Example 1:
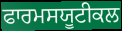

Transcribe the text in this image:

ਫਾਰਮਸਯੂਟੀਕਲ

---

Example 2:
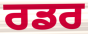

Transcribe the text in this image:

ਰਡਰ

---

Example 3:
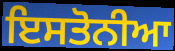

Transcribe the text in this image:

ਇਸਤੋਨੀਆ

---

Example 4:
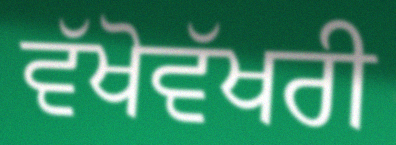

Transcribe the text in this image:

ਵੱਖੋਵੱਖਰੀ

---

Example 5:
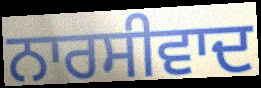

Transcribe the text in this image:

ਨਾਰਸੀਵਾਦ